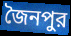
জৈনপুর